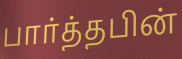
பார்த்தபின்